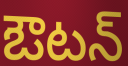
ఔటన్